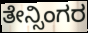
ತೇನ್ಸಿಂಗರ